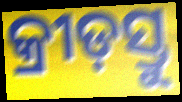
କ୍ରୀଡ଼ସ୍ତୁ